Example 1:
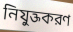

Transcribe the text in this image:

নিযুক্তকরণ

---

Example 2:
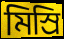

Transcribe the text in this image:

মিস্রি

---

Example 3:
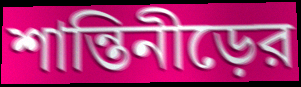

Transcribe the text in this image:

শান্তিনীড়ের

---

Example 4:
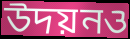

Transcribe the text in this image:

উদয়নও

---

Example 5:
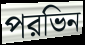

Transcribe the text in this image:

পরভিন